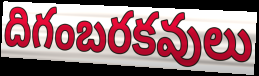
దిగంబరకవులు